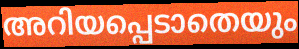
അറിയപ്പെടാതെയും